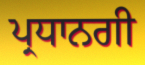
ਪ੍ਰਧਾਨਗੀ